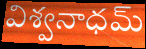
విశ్వనాధమ్